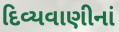
દિવ્યવાણીનાં